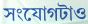
সংযোগটাও